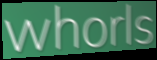
whorls